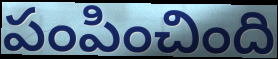
పంపించింది